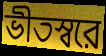
ভীতস্বরে